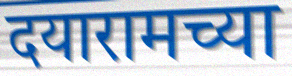
दयारामच्या